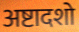
अष्टादशो